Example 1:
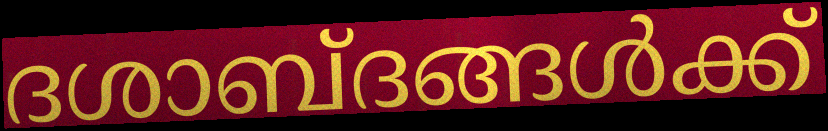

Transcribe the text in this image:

ദശാബ്ദങ്ങൾക്ക്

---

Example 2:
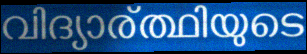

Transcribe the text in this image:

വിദ്യാര്ത്ഥിയുടെ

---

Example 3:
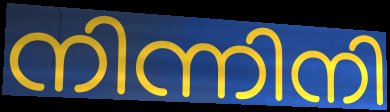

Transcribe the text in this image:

നിന്നിനി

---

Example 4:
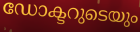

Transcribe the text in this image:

ഡോക്ടറുടെയും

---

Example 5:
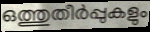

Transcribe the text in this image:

ഒത്തുതീർപ്പുകളും